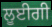
ਲੂਈਗੀ